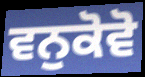
ਵਨੁਕੋਵੋ